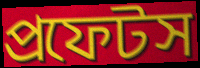
প্রফেটস